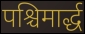
पश्चिमार्द्ध